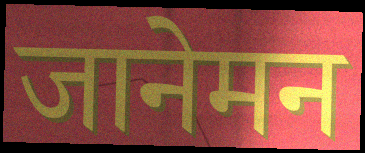
जानेमन